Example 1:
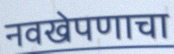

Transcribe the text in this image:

नवखेपणाचा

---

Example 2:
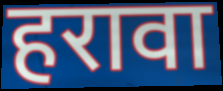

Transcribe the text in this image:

हरावा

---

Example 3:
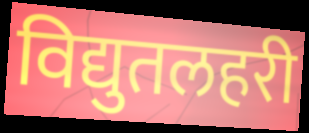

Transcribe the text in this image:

विद्युतलहरी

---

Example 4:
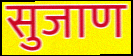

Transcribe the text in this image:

सुजाण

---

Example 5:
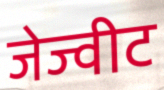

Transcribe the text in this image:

जेज्वीट